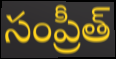
సంప్రీత్